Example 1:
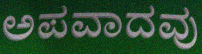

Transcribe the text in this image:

ಅಪವಾದವು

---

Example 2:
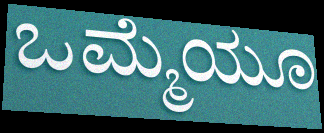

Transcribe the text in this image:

ಒಮ್ಮೆಯೂ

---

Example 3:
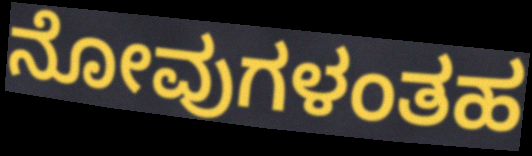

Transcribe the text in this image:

ನೋವುಗಳಂತಹ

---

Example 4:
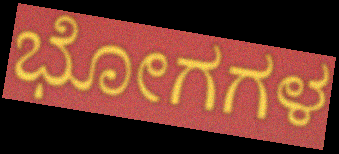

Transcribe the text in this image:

ಭೋಗಗಳ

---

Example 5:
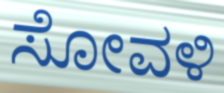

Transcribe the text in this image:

ಸೋವಳಿ